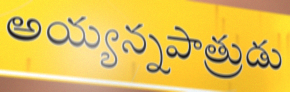
అయ్యన్నపాత్రుడు